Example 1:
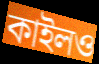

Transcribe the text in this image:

কাইলও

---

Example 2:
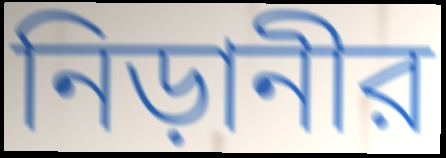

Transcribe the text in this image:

নিড়ানীর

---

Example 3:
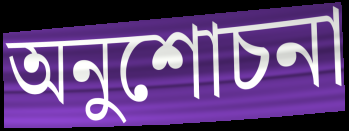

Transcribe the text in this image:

অনুশোচনা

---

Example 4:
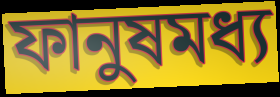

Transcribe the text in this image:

ফানুষমধ্য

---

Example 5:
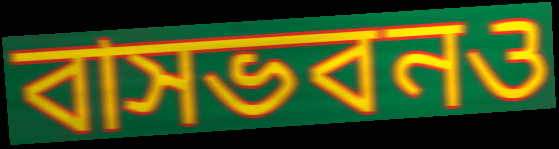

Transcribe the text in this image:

বাসভবনও